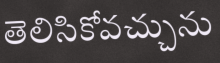
తెలిసికోవచ్చును